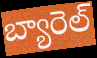
బ్యారెల్